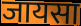
जायसा